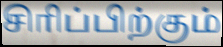
சிரிப்பிற்கும்